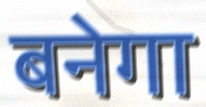
बनेगा